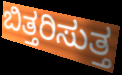
ಬಿತ್ತರಿಸುತ್ತ